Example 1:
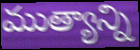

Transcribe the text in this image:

ముత్యాన్ని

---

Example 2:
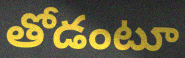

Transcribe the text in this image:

తోడంటూ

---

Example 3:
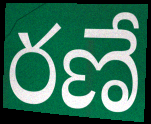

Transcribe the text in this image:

రణే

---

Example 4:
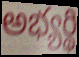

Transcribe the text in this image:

అభ్యర్థి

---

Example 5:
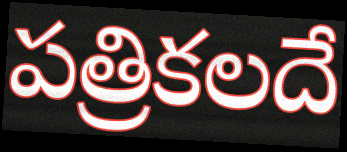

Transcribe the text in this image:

పత్రికలదే